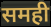
समही